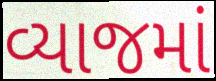
વ્યાજમાં